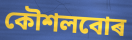
কৌশলবোৰ